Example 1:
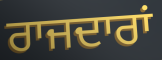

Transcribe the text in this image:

ਰਾਜਦਾਰਾਂ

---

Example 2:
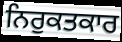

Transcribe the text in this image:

ਨਿਰੁਕਤਕਾਰ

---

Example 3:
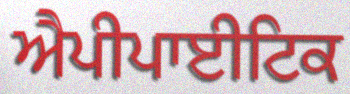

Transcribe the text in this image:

ਐਪੀਪਾਈਟਿਕ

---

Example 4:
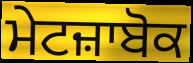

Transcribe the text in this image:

ਮੇਟਜ਼ਾਬੋਕ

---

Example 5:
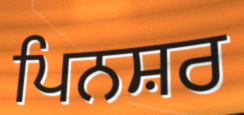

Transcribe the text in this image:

ਪਿਨਸ਼ਰ